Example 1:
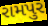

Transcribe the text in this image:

રામપુર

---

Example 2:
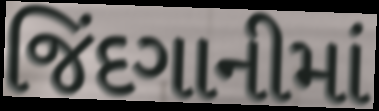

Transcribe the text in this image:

જિંદગાનીમાં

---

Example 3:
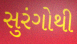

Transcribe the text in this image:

સુરંગોથી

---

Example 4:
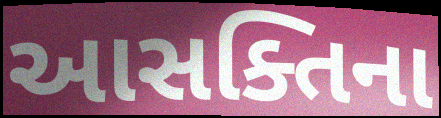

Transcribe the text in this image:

આસક્તિના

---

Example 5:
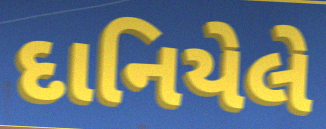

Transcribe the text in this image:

દાનિયેલે